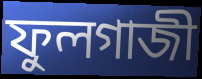
ফুলগাজী